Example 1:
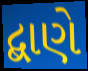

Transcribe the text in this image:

દ્બાણે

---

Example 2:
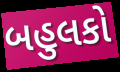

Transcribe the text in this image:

બહુલકો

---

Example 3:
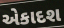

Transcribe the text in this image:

એકાદશ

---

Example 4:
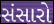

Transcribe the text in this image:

સંસારો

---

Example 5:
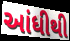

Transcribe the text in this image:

આંધીથી